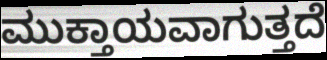
ಮುಕ್ತಾಯವಾಗುತ್ತದೆ